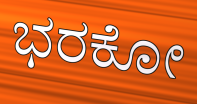
ಭರಕೋ